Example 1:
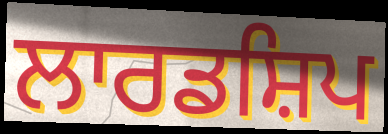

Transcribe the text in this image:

ਲਾਰਡਸ਼ਿਪ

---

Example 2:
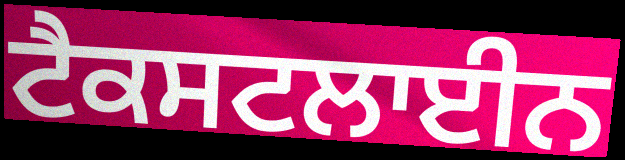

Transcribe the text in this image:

ਟੈਕਸਟਲਾਈਨ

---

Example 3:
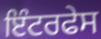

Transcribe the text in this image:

ਇੰਟਰਫੇਸ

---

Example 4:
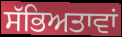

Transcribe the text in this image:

ਸੱਭਿਅਤਾਵਾਂ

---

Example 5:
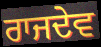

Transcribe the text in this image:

ਰਾਜਦੇਵ